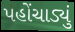
પહોંચાડ્યું